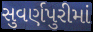
સુવર્ણપુરીમાં